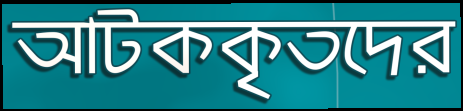
আটককৃতদের